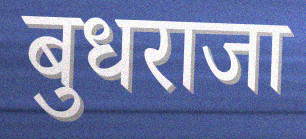
बुधराजा